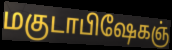
மகுடாபிஷேகஞ்